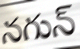
నగున్